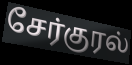
சேர்குரல்